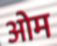
ओम